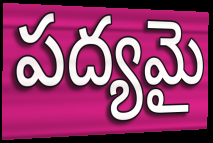
పద్యమై